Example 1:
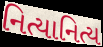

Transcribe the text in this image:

નિત્યાનિત્ય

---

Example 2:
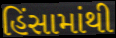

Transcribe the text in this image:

હિંસામાંથી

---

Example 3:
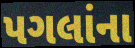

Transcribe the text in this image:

પગલાંના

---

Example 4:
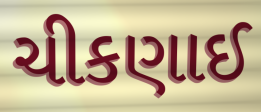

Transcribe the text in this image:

ચીકણાઈ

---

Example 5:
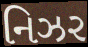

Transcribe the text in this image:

નિઝર